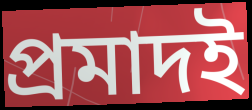
প্রমাদই